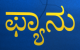
ಫ್ಯಾನು